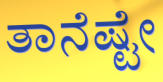
ತಾನೆಷ್ಟೇ